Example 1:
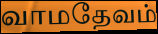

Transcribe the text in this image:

வாமதேவம்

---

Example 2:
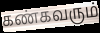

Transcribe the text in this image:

கண்கவரும்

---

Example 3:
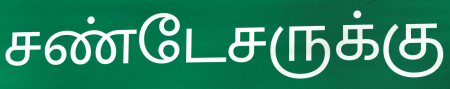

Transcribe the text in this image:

சண்டேசருக்கு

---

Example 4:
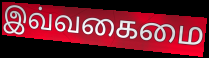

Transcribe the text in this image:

இவ்வகைமை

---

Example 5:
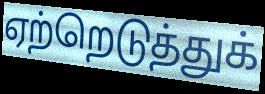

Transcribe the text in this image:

ஏற்றெடுத்துக்